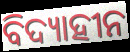
ବିଦ୍ୟାହୀନ